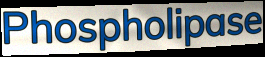
Phospholipase